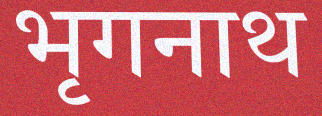
भृगनाथ